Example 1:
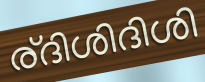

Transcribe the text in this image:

ര്ദിശിദിശി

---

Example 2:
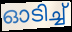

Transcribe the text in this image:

ഓടിച്ച്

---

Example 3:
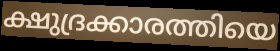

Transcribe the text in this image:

ക്ഷുദ്രക്കാരത്തിയെ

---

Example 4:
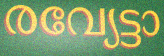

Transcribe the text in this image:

രവ്യേട്ടാ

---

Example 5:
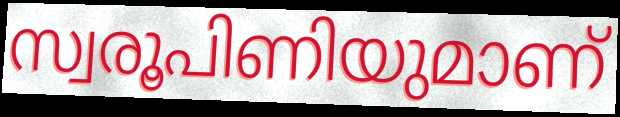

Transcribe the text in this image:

സ്വരൂപിണിയുമാണ്